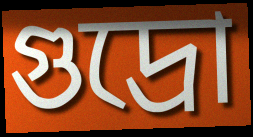
গুদ্ৰো